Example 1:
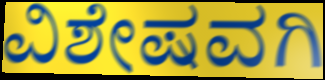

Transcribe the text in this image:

ವಿಶೇಷವಗಿ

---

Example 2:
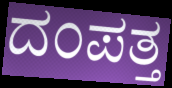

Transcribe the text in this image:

ದಂಪತ್ತ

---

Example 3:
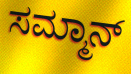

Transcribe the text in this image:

ಸಮ್ಮಾನ್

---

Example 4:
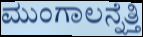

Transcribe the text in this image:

ಮುಂಗಾಲನ್ನೆತ್ತಿ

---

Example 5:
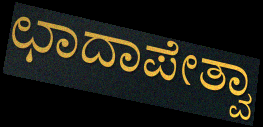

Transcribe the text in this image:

ಛಾದಾಪೇತ್ವಾ